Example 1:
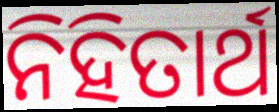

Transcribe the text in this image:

ନିହିତାର୍ଥ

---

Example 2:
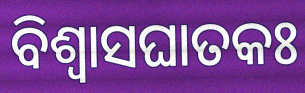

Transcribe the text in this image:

ବିଶ୍ୱାସଘାତକଃ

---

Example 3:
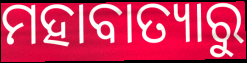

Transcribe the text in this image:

ମହାବାତ୍ୟାରୁ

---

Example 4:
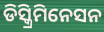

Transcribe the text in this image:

ଡିସ୍କ୍ରିମିନେସନ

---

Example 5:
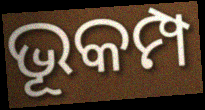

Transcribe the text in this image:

ଭୂକମ୍ପ